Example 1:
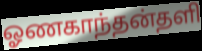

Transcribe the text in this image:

ஓணகாந்தன்தளி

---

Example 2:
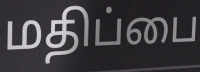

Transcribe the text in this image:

மதிப்பை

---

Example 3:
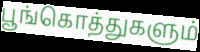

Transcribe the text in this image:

பூங்கொத்துகளும்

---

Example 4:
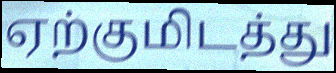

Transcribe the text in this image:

ஏற்குமிடத்து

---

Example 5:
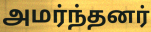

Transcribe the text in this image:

அமர்ந்தனர்